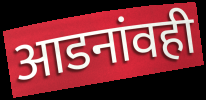
आडनांवही